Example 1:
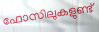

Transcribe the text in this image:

ഫോസിലുകളുണ്ട്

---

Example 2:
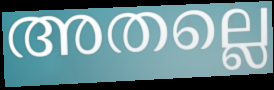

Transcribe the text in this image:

അതല്ലെ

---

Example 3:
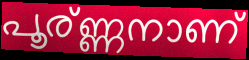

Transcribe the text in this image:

പൂര്ണ്ണനാണ്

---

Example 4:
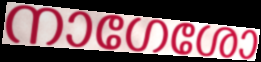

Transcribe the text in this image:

നാഗേശോ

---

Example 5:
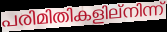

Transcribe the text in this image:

പരിമിതികളില്നിന്ന്